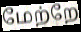
மேற்றே